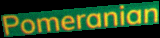
Pomeranian